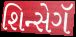
શિન્સેગૅ